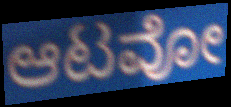
ಆಟವೋ